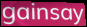
gainsay